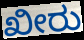
ಖೀರು